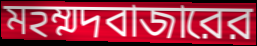
মহম্মদবাজারের